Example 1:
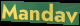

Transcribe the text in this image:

Mandav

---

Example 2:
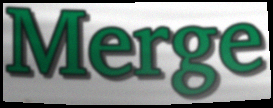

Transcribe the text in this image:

Merge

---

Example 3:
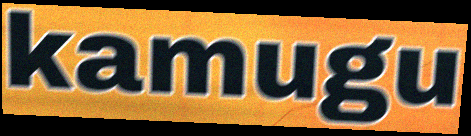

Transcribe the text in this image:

kamugu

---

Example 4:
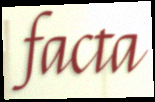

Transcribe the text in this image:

facta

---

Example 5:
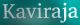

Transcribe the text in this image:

Kaviraja